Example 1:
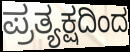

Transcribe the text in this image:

ಪ್ರತ್ಯಕ್ಷದಿಂದ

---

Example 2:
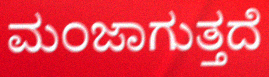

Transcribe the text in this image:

ಮಂಜಾಗುತ್ತದೆ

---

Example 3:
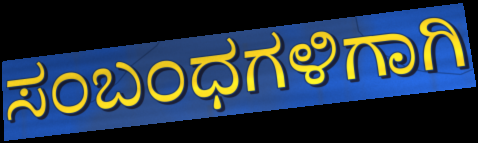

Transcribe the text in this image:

ಸಂಬಂಧಗಳಿಗಾಗಿ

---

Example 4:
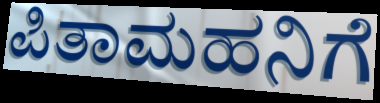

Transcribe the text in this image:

ಪಿತಾಮಹನಿಗೆ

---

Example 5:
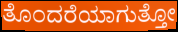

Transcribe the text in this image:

ತೊಂದರೆಯಾಗುತ್ತೋ